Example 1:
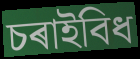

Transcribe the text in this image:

চৰাইবিধ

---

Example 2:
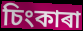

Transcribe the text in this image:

চিংকাৰা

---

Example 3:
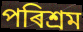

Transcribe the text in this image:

পৰিশ্ৰম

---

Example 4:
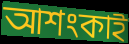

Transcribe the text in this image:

আশংকাই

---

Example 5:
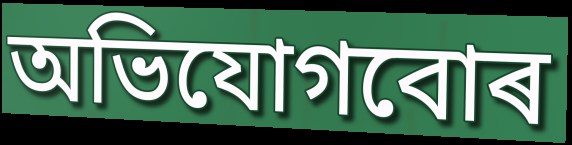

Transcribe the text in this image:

অভিযোগবোৰ